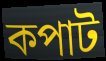
কপাট